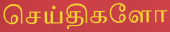
செய்திகளோ